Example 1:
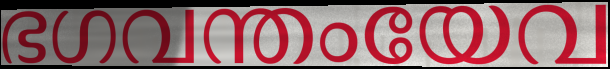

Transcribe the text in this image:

ഭഗവന്തംയേവ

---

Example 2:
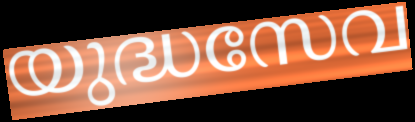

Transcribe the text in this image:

യുദ്ധസേവ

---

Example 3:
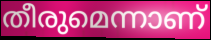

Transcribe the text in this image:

തീരുമെന്നാണ്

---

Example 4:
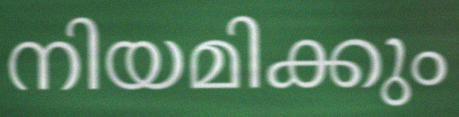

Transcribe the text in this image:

നിയമിക്കും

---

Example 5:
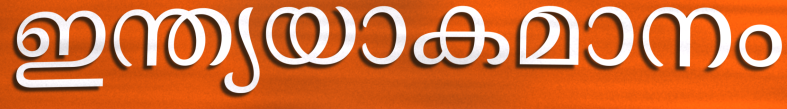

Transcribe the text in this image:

ഇന്ത്യയാകമാനം